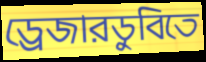
ড্রেজারডুবিতে